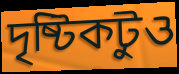
দৃষ্টিকটুও